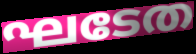
ഘടേത